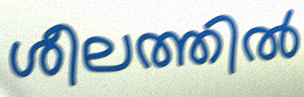
ശീലത്തിൽ